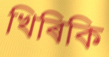
খিৰিকি